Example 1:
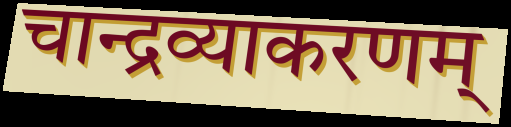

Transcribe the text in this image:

चान्द्रव्याकरणम्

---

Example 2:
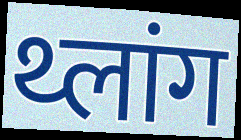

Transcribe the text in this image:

थ्लांग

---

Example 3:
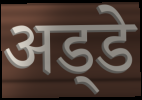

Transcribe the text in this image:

अड्‍डे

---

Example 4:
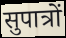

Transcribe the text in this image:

सुपात्रों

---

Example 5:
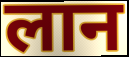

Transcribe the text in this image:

लान